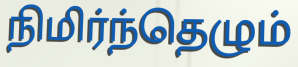
நிமிர்ந்தெழும்